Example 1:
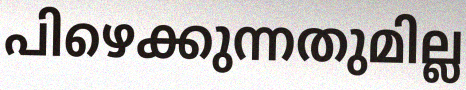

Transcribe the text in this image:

പിഴെക്കുന്നതുമില്ല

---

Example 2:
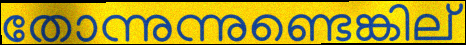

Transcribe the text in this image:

തോന്നുന്നുണ്ടെങ്കില്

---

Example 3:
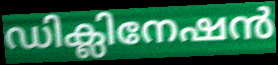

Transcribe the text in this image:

ഡിക്ലിനേഷൻ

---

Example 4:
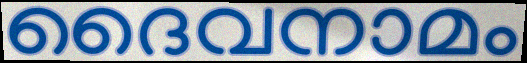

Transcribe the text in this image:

ദൈവനാമം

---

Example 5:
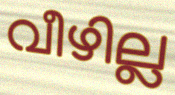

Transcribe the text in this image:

വീഴില്ല